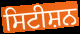
ਸਿਟੀਸ਼ਨ